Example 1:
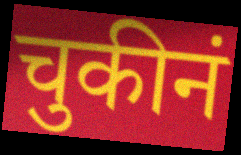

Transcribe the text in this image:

चुकीनं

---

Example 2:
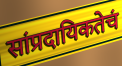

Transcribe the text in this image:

सांप्रदायिकतेचं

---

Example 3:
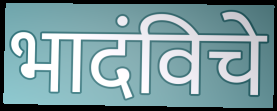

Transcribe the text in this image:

भादंविचे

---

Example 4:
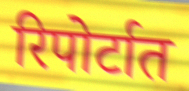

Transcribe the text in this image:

रिपोर्टात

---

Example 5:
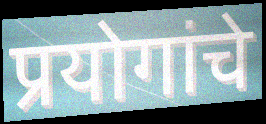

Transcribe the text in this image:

प्रयोगांचे